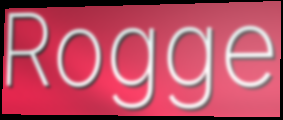
Rogge